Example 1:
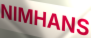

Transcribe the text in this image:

NIMHANS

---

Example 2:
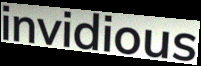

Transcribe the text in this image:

invidious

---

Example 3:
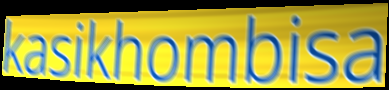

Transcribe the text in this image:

kasikhombisa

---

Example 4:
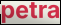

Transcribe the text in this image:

petra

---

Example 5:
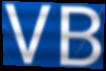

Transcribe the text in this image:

VB